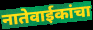
नातेवाईकांचा